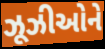
ઝૂઝીઓને